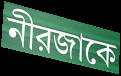
নীরজাকে